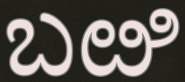
ಬೞಿ